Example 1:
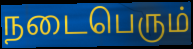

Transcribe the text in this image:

நடைபெரும்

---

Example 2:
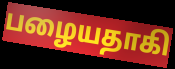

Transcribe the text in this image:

பழையதாகி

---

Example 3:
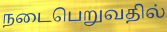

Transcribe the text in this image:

நடைபெறுவதில்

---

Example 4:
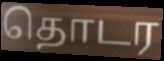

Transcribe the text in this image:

தொடர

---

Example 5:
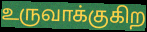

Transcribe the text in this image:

உருவாக்குகிற